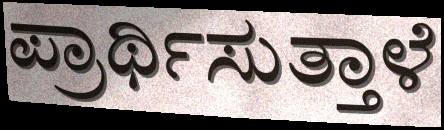
ಪ್ರಾರ್ಥಿಸುತ್ತಾಳೆ